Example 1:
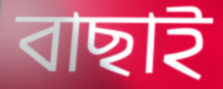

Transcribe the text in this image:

বাছাই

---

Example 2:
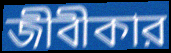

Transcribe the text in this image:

জীবীকার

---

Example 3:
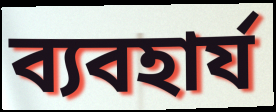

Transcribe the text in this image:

ব্যবহার্য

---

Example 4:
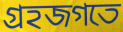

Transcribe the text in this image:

গ্রহজগতে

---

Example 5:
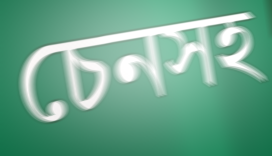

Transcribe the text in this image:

চেনসহ